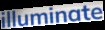
illuminate